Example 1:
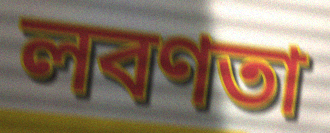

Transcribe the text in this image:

লবণতা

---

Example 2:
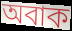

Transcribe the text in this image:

অবাক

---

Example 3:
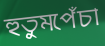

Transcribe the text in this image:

হুতুমপেঁচা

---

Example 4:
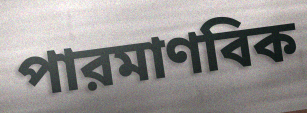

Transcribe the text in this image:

পারমাণবিক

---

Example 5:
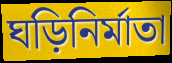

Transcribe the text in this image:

ঘড়িনির্মাতা